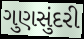
ગુણસુંદરી